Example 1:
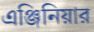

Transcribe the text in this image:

এঞ্জিনিয়ার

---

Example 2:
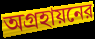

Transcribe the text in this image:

অগ্রহায়নের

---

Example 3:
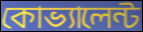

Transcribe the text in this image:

কোভ্যালেন্ট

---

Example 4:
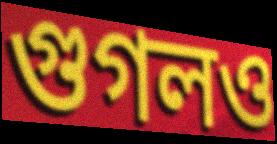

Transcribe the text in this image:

গুগলও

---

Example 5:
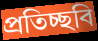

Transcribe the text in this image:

প্রতিচ্ছবি